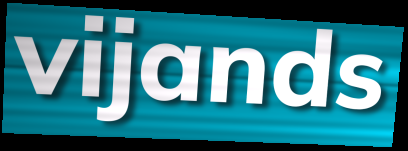
vijands